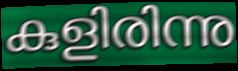
കുളിരിന്നു